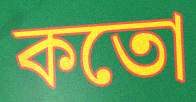
কতো